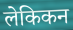
लेकिकन